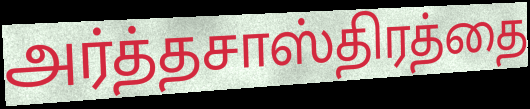
அர்த்தசாஸ்திரத்தை